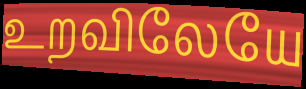
உறவிலேயே